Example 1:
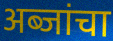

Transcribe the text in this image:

अब्जांचा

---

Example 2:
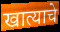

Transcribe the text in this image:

खात्याचे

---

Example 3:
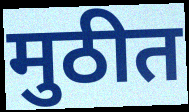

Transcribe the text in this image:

मुठीत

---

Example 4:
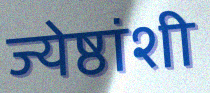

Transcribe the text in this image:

ज्येष्ठांशी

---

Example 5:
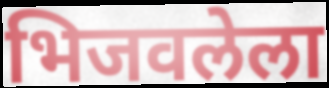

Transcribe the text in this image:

भिजवलेला